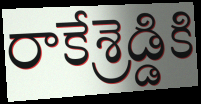
రాకేశ్రెడ్డికి